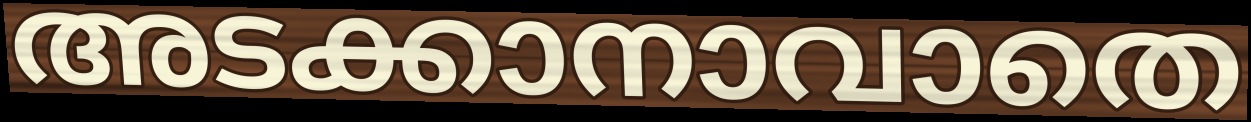
അടക്കാനാവാതെ